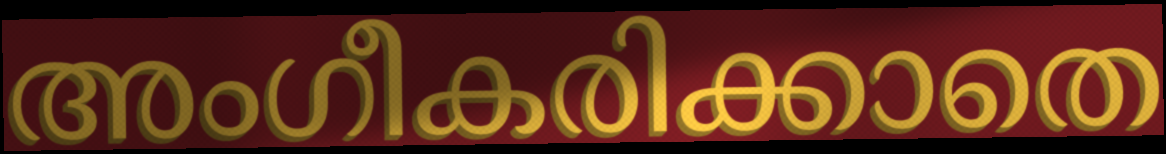
അംഗീകരിക്കാതെ